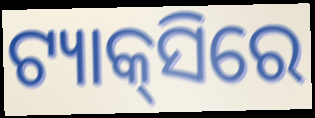
ଟ୍ୟାକ୍‍ସିରେ